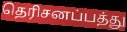
தெரிசனப்பத்து